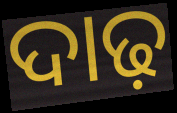
ଦାଢ଼